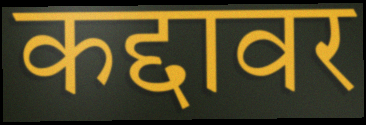
कद्दावर